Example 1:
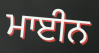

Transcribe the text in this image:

ਮਾਈਨ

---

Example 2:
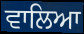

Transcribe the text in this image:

ਵਾਲਿਆ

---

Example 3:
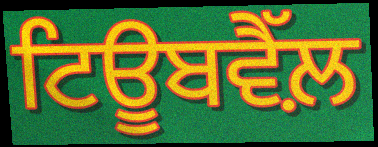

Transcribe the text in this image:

ਟਿਊਬਵੈੱਲ਼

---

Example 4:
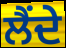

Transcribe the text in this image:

ਲੈਂਦੇ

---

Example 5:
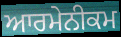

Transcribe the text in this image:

ਆਰਮੇਨੀਕਮ